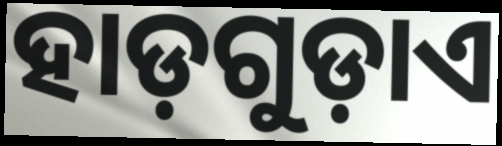
ହାଡ଼ଗୁଡ଼ାଏ